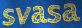
svasa